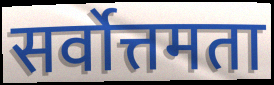
सर्वोत्तमता